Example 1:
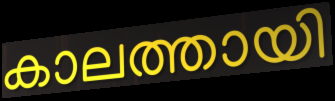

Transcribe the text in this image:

കാലത്തായി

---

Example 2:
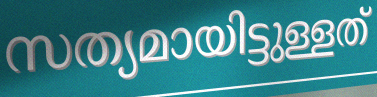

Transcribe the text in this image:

സത്യമായിട്ടുള്ളത്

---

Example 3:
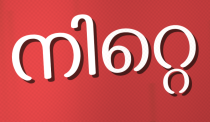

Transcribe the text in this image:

നിറ്റെ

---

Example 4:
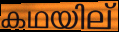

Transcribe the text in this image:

കഥയില്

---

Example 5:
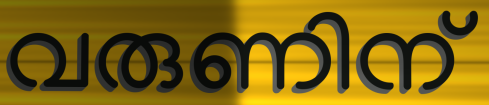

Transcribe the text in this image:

വരുണിന്